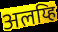
अलय्हि